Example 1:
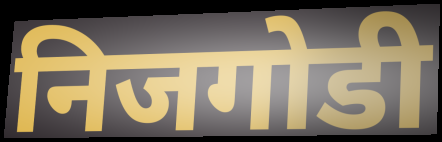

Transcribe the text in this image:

निजगोडी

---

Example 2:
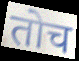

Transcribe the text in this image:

तोच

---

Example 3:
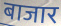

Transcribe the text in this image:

बाजार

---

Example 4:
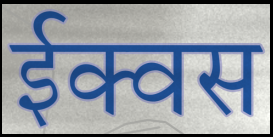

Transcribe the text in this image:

ईक्‍वस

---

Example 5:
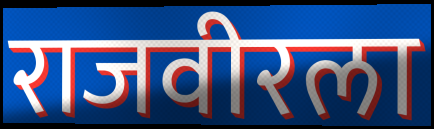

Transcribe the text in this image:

राजवीरला